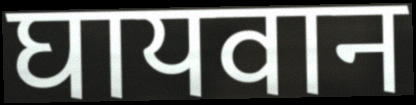
घायवान